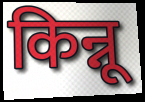
किन्नू